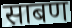
साबण